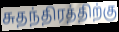
சுதந்திரத்திற்கு